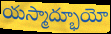
యస్మాద్భూయో